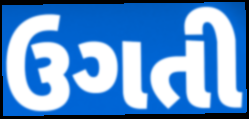
ઉગતી